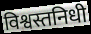
विश्वस्तनिधी